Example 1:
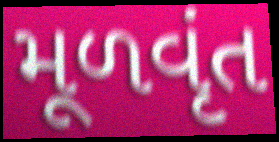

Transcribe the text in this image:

મૂળવૃંત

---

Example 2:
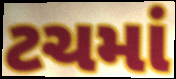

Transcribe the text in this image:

ટચમાં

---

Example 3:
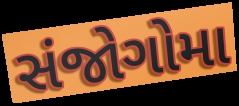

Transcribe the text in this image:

સંજોગોમા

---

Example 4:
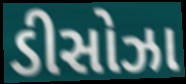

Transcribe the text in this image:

ડીસોઝા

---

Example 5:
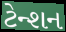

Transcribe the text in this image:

ટેન્શન